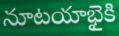
నూటయాభైకి